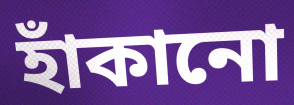
হাঁকানো